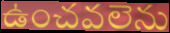
ఉంచవలెను